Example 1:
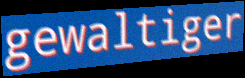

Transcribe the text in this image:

gewaltiger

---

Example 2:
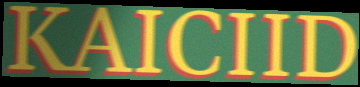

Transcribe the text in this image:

KAICIID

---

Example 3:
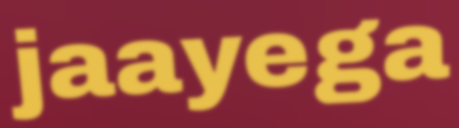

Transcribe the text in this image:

jaayega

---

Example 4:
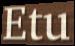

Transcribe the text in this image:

Etu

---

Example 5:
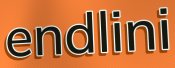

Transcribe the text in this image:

endlini